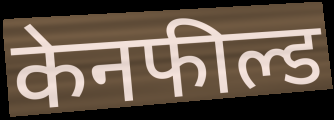
केनफील्ड